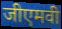
जीएमवी